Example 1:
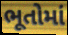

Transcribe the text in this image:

ભૂતોમાં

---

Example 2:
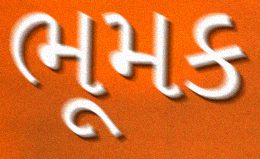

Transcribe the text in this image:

ભૂમક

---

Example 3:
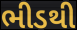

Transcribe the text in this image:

ભીડથી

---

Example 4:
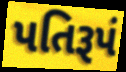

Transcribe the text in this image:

પતિરૂપં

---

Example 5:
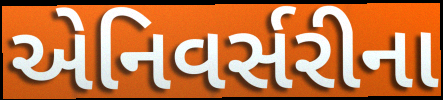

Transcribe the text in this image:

એનિવર્સરીના